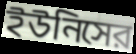
ইউনিসের